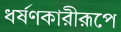
ধর্ষণকারীরূপে